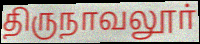
திருநாவலூர்